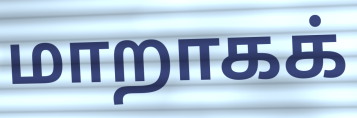
மாறாகக்